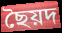
ছৈয়দ